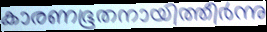
കാരണഭൂതനായിത്തീർന്നു